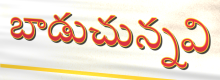
బాడుచున్నవి